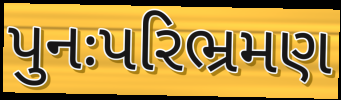
પુનઃપરિભ્રમણ